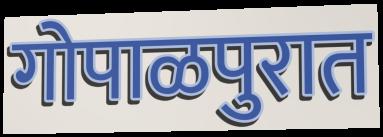
गोपाळपुरात